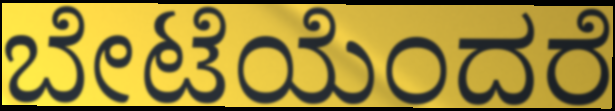
ಬೇಟೆಯೆಂದರೆ